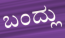
ಬಂದ್ಲು